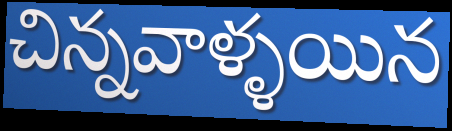
చిన్నవాళ్ళయిన